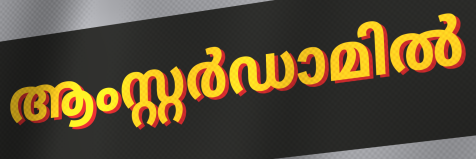
ആംസ്റ്റർഡാമിൽ